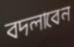
বদলাবেন